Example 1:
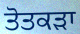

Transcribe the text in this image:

ਤੋਤਕੜਾ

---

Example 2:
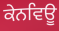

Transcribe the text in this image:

ਕੇਨਵਿਊ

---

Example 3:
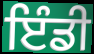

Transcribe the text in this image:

ਇੰਡੀ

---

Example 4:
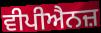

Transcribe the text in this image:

ਵੀਪੀਐਨਜ਼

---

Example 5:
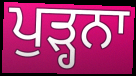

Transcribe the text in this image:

ਪੁੜ੍ਹਨਾ